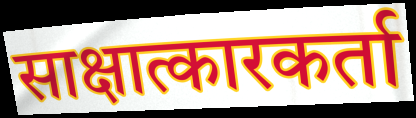
साक्षात्कारकर्ता